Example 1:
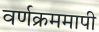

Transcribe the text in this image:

वर्णक्रममापी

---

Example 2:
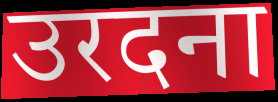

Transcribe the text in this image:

उरदना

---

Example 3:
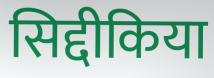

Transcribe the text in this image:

सिद्दीकिया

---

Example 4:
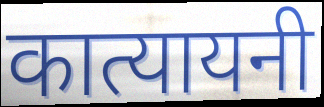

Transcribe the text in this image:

कात्यायनी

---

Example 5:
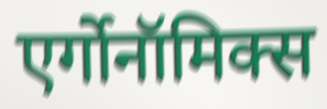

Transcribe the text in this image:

एर्गोनॉमिक्स